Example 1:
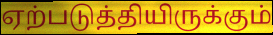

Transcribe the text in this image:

ஏற்படுத்தியிருக்கும்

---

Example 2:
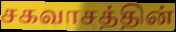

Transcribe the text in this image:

சகவாசத்தின்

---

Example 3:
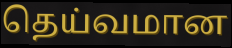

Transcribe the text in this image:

தெய்வமான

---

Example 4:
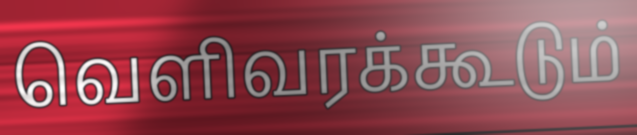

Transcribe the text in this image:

வெளிவரக்கூடும்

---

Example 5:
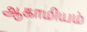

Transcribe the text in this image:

ஆகாமியம்